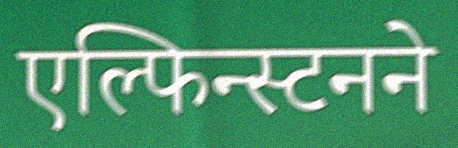
एल्फिन्स्टनने